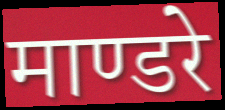
माण्डरे